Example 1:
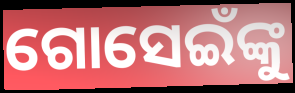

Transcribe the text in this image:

ଗୋସେଇଁଙ୍କୁ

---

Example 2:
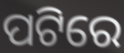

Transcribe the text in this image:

ପଟିରେ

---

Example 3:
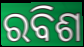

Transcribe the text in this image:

ରବିଶ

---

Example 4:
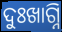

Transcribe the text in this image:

ଦୁଃଖାଗ୍ନି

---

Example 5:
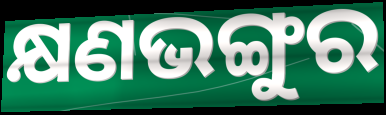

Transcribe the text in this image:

କ୍ଷଣଭଙ୍ଗୁର